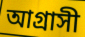
আগ্রাসী